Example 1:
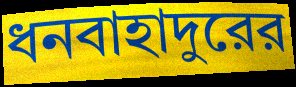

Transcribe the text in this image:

ধনবাহাদুরের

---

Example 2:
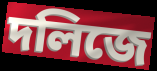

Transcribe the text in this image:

দলিজে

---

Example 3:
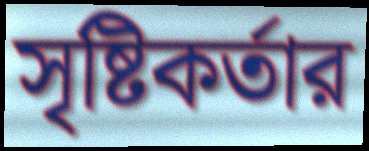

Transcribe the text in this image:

সৃষ্টিকর্তার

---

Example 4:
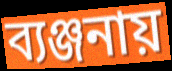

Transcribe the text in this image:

ব্যঞ্জনায়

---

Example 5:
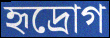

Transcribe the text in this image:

হৃদ্রোগ